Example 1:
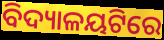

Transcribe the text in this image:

ବିଦ୍ୟାଳୟଟିରେ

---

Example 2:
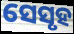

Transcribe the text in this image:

ସେସୃହ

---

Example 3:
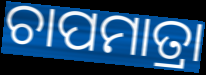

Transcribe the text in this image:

ଚାପମାତ୍ରା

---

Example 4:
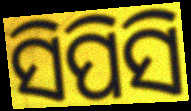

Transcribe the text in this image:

ସିପିସି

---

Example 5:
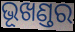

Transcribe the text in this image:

ଭୂଖଣ୍ଡର